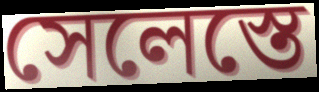
সেলেস্তে